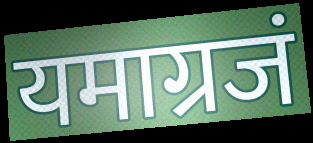
यमाग्रजं